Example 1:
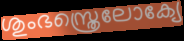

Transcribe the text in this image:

ശുംഭസ്ത്രെലോക്യേ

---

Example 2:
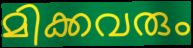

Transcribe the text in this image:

മിക്കവരും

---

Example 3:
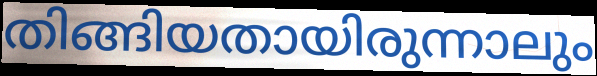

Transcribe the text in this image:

തിങ്ങിയതായിരുന്നാലും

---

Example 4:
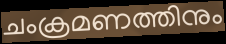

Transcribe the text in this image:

ചംക്രമണത്തിനും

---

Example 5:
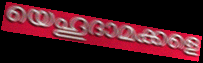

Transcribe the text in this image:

യെഹൂദാമക്കളെ